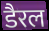
डैरल